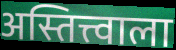
अस्तित्त्वाला